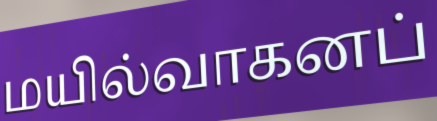
மயில்வாகனப்